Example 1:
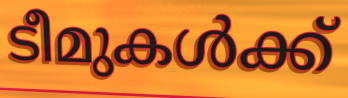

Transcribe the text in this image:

ടീമുകൾക്ക്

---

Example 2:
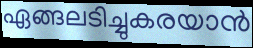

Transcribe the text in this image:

ഏങ്ങലടിച്ചുകരയാൻ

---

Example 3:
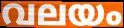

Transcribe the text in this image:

വലയം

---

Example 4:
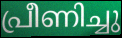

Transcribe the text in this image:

പ്രീണിച്ചു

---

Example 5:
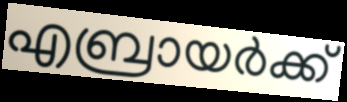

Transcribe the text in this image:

എബ്രായർക്ക്